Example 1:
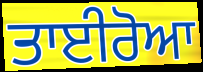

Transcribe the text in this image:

ਤਾਈਰੋਆ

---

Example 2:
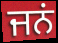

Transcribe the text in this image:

ਜਨਂ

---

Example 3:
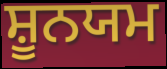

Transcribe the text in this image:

ਸ਼ੂਨਯਮ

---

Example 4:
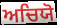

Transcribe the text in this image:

ਅਚਿਯੋ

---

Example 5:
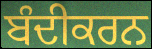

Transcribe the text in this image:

ਬੰਦੀਕਰਨ